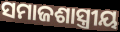
ସମାଜଶାସ୍ତ୍ରୀୟ